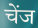
चेंज